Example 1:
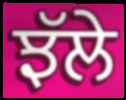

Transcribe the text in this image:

ਝੱਲੇ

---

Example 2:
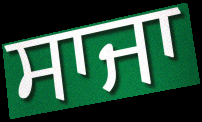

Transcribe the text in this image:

ਸਾਜਾ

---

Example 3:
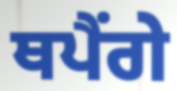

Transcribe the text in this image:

ਥਪੈਂਗੇ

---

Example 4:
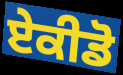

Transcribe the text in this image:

ਏਕੀਡੋ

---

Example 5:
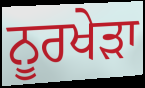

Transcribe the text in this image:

ਨੂਰਖੇੜਾ